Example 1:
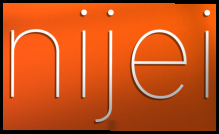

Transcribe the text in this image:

nijei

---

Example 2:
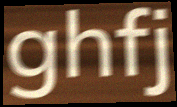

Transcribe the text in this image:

ghfj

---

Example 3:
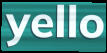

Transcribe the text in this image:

yello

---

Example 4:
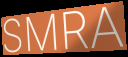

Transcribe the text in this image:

SMRA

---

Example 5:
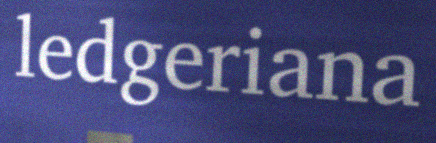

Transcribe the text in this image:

ledgeriana